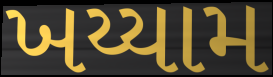
ખય્યામ